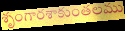
శృంగారశాకుంతలము